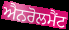
ਐਨਰੋਲਮੈਂਟ